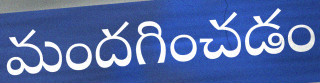
మందగించడం